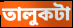
তালুকটা